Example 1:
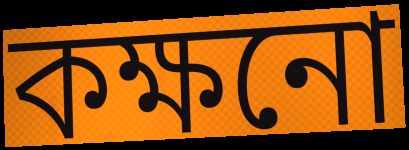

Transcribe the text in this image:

কক্ষনো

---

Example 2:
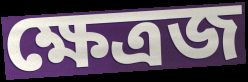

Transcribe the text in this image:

ক্ষেত্রজ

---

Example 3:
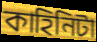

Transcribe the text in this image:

কাহিনিটা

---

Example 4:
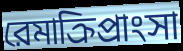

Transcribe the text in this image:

রেমাক্রিপ্রাংসা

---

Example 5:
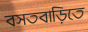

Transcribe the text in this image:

বসতবাড়িতে